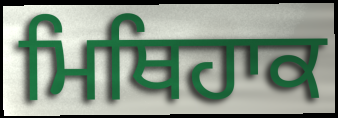
ਮਿਥਿਹਾਕ